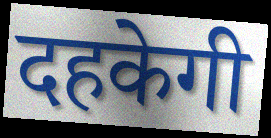
दहकेगी